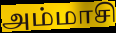
அம்மாசி